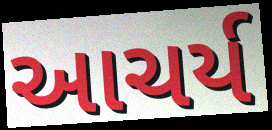
આચર્ય